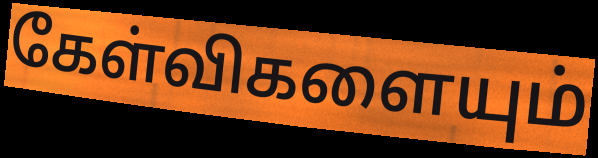
கேள்விகளையும்